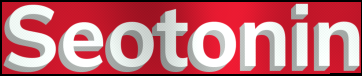
Seotonin